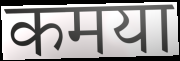
कमया